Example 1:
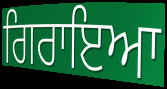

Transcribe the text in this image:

ਗਿਰਾਇਆ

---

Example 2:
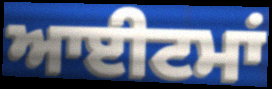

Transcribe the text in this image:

ਆਈਟਮਾਂ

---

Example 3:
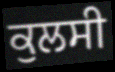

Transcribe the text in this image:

ਕੁਲਸੀ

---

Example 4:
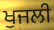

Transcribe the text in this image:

ਖੁਜਲੀ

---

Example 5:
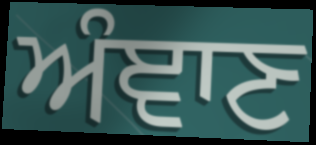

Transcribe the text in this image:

ਅੰਞਾਣ